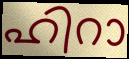
ഹിറാ